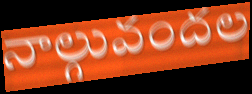
నాల్గువందల